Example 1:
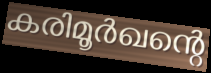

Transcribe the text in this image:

കരിമൂർഖന്റെ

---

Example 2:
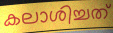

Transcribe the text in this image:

കലാശിച്ചത്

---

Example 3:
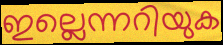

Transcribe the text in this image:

ഇല്ലെന്നറിയുക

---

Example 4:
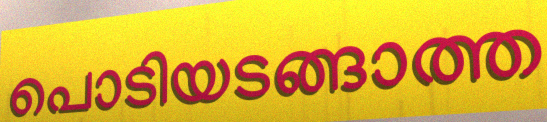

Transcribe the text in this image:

പൊടിയടങ്ങാത്ത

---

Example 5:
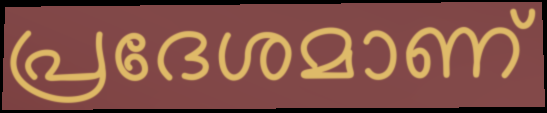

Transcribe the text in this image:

പ്രദേശമാണ്